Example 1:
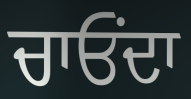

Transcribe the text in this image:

ਚਾਓਂਦਾ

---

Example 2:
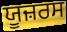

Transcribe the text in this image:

ਯੂਜ਼ਰਸ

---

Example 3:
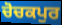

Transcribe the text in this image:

ਚੋਚਕਪੁਰ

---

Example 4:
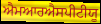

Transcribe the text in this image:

ਐਮਆਰਐਸਪੀਟੀਯੂ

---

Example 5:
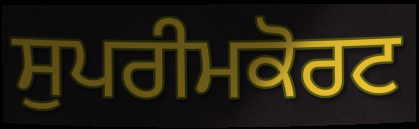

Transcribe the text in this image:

ਸੁਪਰੀਮਕੋਰਟ